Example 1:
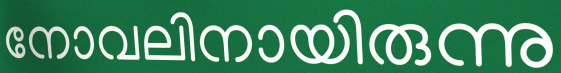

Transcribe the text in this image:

നോവലിനായിരുന്നു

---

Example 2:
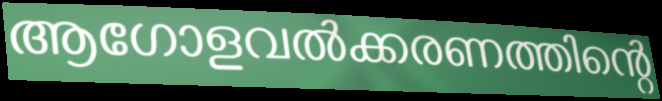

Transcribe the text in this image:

ആഗോളവൽക്കരണത്തിന്റെ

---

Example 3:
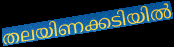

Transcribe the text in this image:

തലയിണക്കടിയിൽ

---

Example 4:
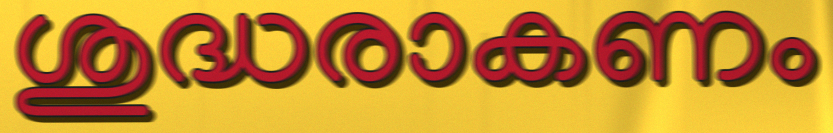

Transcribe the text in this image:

ശുദ്ധരാകണം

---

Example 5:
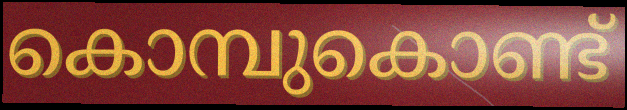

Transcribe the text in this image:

കൊമ്പുകൊണ്ട്